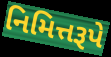
નિમિત્તરૂપે